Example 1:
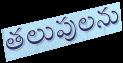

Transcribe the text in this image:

తలుపులను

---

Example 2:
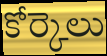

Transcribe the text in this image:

కోర్కెలు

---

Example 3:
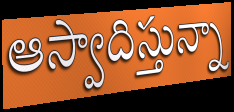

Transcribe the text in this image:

ఆస్వాదిస్తున్నా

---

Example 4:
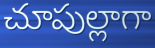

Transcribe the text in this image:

చూపుల్లాగా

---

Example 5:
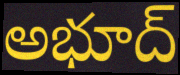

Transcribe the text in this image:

అభూద్